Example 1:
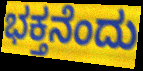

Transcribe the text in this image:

ಭಕ್ತನೆಂದು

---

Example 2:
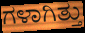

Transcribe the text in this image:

ಗಳಾಗಿತ್ತು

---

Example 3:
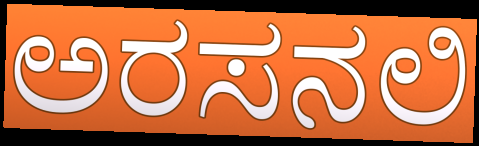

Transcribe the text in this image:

ಅರಸನಲಿ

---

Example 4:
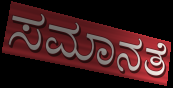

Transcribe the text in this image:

ಸಮಾನತೆ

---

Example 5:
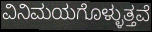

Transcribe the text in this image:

ವಿನಿಮಯಗೊಳ್ಳುತ್ತವೆ